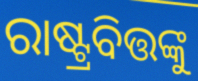
ରାଷ୍ଟ୍ରବିତ୍ତଙ୍କୁ